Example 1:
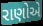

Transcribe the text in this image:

રાણોએ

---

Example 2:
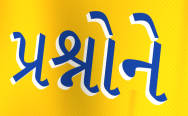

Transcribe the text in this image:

પ્રશ્નોને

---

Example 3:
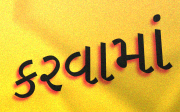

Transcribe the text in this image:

કરવામાં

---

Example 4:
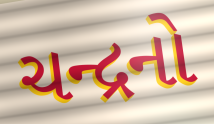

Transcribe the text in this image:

ચન્દ્રનો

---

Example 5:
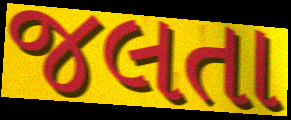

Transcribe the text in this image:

જલતા